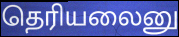
தெரியலைனு